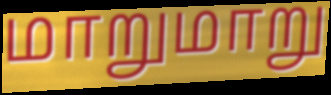
மாறுமாறு